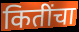
कितींचा